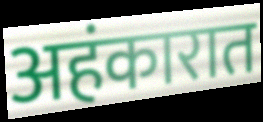
अहंकारात